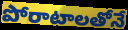
పోరాటాలతోనే